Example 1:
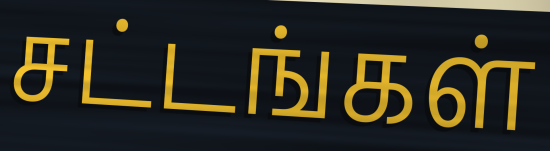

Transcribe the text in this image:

சட்டங்கள்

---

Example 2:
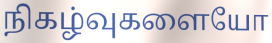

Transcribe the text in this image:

நிகழ்வுகளையோ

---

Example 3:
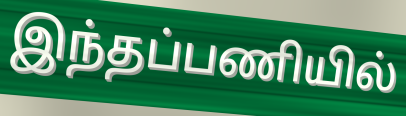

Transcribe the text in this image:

இந்தப்பணியில்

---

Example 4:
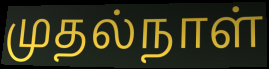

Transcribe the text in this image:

முதல்நாள்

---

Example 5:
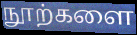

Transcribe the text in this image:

நூற்களை